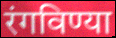
रंगविण्या